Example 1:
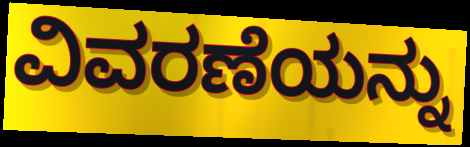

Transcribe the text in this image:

ವಿವರಣೆಯನ್ನು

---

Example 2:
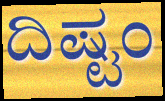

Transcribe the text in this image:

ದಿಷ್ಟಂ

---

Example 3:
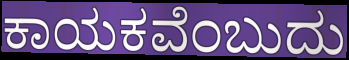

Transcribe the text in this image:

ಕಾಯಕವೆಂಬುದು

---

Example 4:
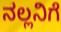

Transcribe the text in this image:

ನಲ್ಲನಿಗೆ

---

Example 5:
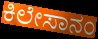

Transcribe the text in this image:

ಕಿಲೇಸಾನಂ